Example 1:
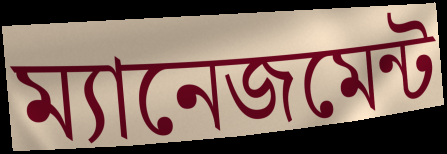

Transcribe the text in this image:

ম্যানেজমেন্ট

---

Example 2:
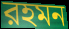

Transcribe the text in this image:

রহমন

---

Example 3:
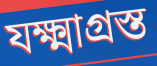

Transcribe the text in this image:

যক্ষ্মাগ্রস্ত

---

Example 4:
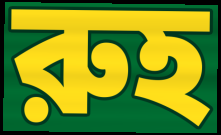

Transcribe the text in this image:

রুহ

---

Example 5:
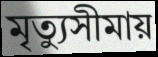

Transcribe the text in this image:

মৃত্যুসীমায়